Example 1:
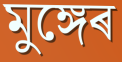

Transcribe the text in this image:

মুঙ্গেৰ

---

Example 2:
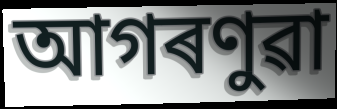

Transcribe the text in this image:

আগৰণুৱা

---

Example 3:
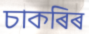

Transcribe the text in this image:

চাকৰিৰ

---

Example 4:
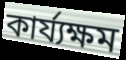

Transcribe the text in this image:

কাৰ্য্যক্ষম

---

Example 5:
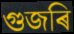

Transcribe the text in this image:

গুজৰি